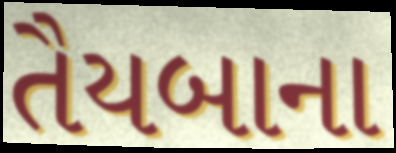
તૈયબાના